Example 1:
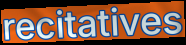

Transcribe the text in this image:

recitatives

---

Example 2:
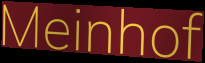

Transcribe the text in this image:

Meinhof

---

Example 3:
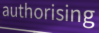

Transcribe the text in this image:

authorising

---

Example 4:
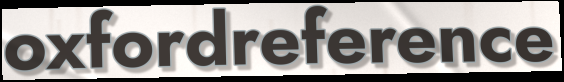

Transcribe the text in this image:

oxfordreference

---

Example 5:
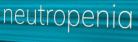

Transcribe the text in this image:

neutropenia